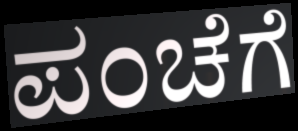
ಪಂಚೆಗೆ